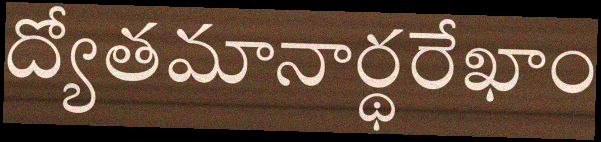
ద్యోతమానార్థరేఖాం